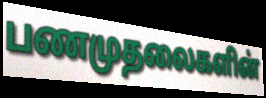
பணமுதலைகளின்